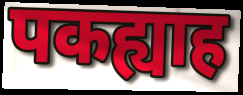
पकह्याह